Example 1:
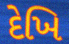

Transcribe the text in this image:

દેખિ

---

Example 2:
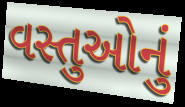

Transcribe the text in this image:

વસ્તુઓનું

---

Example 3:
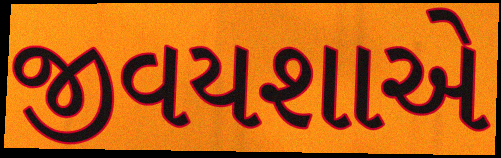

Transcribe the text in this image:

જીવયશાએ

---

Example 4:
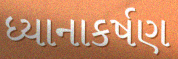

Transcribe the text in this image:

ધ્યાનાકર્ષણ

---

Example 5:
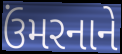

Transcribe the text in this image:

ઉંમરનાને